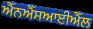
ਐੱਨਐੱਸਆਈਐੱਲ